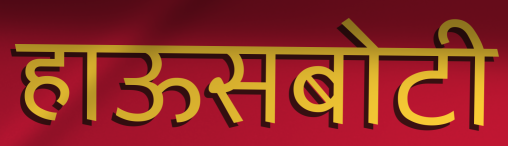
हाऊसबोटी